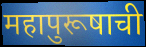
महापुरूषाची